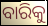
ବାରିକୁ